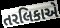
તરલિકાએ